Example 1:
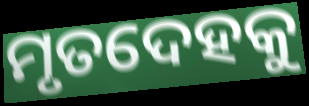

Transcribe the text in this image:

ମୃତଦେହକୁ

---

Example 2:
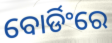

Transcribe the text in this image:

ବୋର୍ଡିଂରେ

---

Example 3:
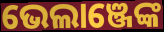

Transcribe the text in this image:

ଭେଲାଞ୍ଜେଙ୍କ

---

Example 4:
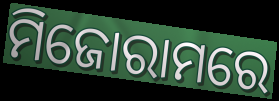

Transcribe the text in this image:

ମିଜୋରାମରେ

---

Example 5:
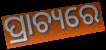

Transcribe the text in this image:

ପ୍ରାଚ୍ୟରେ